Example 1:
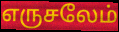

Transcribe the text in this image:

எருசலேம்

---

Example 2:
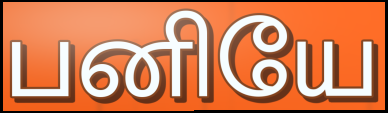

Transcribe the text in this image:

பனியே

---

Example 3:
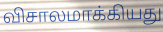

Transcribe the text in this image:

விசாலமாக்கியது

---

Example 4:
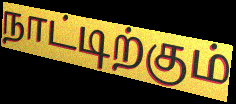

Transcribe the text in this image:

நாட்டிற்கும்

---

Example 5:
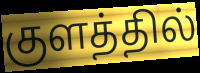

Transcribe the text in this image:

குளத்தில்